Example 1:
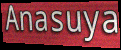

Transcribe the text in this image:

Anasuya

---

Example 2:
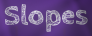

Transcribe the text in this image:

Slopes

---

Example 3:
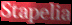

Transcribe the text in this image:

Stapelia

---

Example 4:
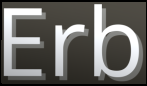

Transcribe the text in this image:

Erb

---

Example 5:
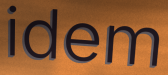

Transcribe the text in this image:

idem